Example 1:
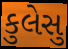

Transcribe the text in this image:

કુલેસુ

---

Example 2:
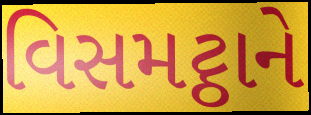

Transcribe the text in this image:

વિસમટ્ઠાને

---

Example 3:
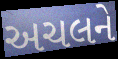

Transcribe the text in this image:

અચલને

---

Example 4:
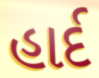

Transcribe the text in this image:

હાર્દ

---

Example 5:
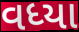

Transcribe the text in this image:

વધ્યા